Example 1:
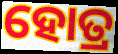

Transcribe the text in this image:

ହୋତ୍ର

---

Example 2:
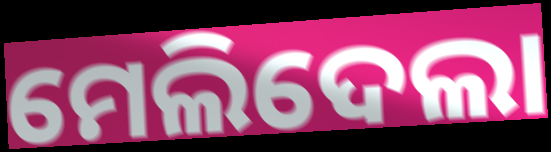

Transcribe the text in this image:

ମେଲିଦେଲା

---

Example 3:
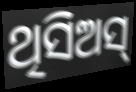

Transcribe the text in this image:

ଥିସିଅସ୍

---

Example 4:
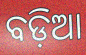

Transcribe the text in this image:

ବଡ଼ିଆ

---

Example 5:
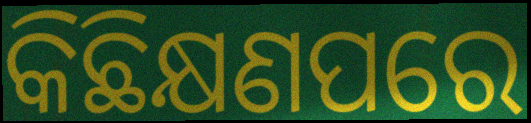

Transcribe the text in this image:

କିଛିକ୍ଷଣପରେ